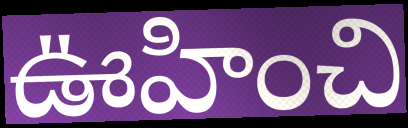
ఊహించి